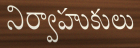
నిర్వాహుకులు